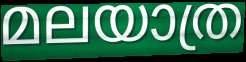
മലയാത്ര